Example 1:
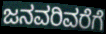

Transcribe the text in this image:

ಜನವರಿವರೆಗೆ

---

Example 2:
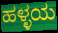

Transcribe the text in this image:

ಹಳ್ಳಯ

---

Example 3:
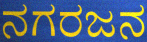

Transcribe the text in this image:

ನಗರಜನ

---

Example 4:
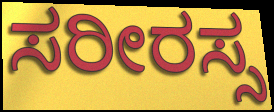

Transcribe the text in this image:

ಸರೀರಸ್ಸ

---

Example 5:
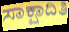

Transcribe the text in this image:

ಸಾಕ್ಷಾದಿತಿ